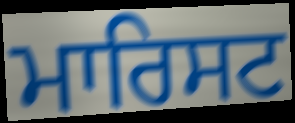
ਮਾਰਿਸਟ